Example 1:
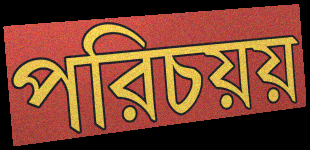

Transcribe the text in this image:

পরিচয়য়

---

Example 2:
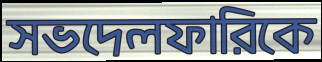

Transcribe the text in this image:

সভদেলফারিকে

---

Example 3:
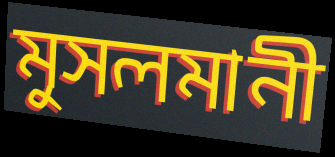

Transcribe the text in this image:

মুসলমানী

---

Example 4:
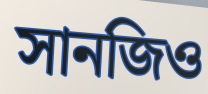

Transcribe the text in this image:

সানজিও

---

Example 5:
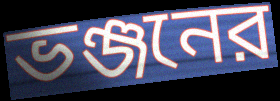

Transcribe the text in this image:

ভঞ্জনের